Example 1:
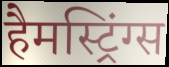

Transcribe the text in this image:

हैमस्ट्रिंग्स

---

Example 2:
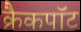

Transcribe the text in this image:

क्रैकपॉट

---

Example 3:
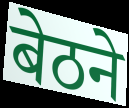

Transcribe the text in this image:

बेठने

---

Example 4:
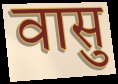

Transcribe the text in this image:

वासु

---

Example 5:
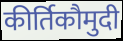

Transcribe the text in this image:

कीर्तिकौमुदी